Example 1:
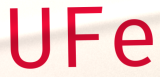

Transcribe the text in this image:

UFe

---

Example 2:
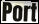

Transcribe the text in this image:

Port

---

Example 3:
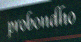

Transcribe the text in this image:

probondho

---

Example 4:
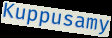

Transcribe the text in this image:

Kuppusamy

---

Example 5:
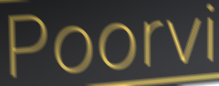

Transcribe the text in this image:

Poorvi